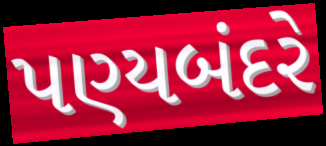
પણ્યબંદરે